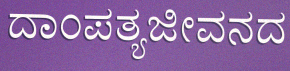
ದಾಂಪತ್ಯಜೀವನದ